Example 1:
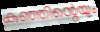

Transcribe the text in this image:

കുഞ്ഞിന്റെയും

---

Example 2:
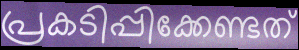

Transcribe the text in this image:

പ്രകടിപ്പിക്കേണ്ടത്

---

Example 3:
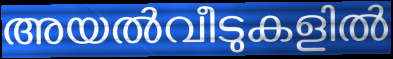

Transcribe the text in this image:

അയൽവീടുകളിൽ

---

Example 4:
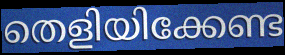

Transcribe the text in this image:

തെളിയിക്കേണ്ട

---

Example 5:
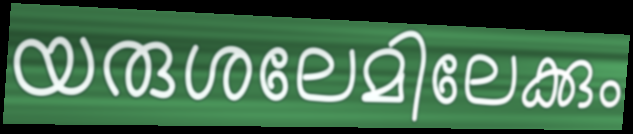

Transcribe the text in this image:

യരുശലേമിലേക്കും